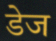
डेज